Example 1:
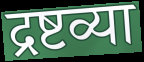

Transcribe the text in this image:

द्रष्टव्या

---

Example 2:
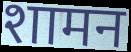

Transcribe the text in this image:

शामन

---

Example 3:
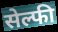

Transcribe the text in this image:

सेल्फी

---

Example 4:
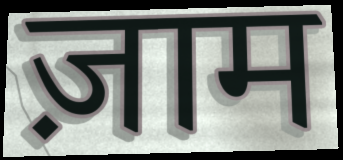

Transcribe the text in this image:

ज़ाम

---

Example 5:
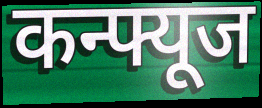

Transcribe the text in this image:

कन्फ्यूज